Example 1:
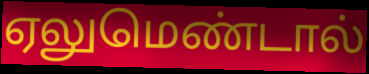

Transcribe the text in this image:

ஏலுமெண்டால்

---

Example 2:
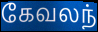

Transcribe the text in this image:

கேவலந்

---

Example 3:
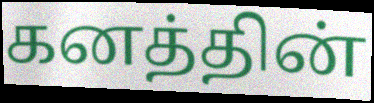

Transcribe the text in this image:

கனத்தின்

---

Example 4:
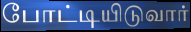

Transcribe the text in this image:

போட்டியிடுவார்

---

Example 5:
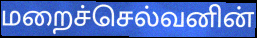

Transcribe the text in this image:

மறைச்செல்வனின்